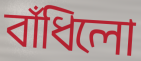
বাঁধিলো